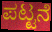
ಪಟ್ಟನೆ